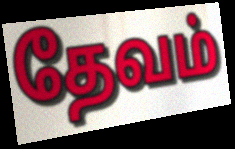
தேவம்